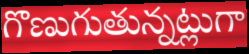
గొణుగుతున్నట్లుగా